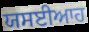
ਯਸਈਆਹ